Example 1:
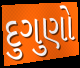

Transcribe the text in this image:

દુગુણો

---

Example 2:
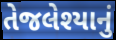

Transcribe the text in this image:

તેજલેશ્યાનું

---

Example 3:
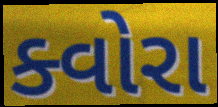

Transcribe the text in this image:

ક્વોરા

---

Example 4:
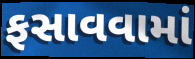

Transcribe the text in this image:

ફસાવવામાં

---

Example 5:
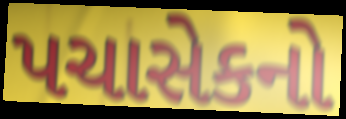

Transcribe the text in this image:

પચાસેકનો